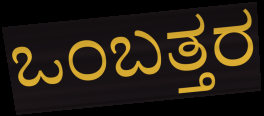
ಒಂಬತ್ತರ